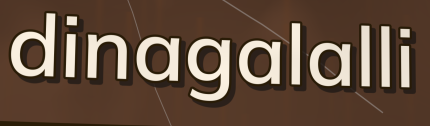
dinagalalli